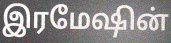
இரமேஷின்